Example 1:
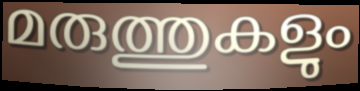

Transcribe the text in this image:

മരുത്തുകളും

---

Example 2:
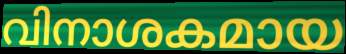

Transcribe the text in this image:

വിനാശകമായ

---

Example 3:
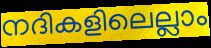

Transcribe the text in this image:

നദികളിലെല്ലാം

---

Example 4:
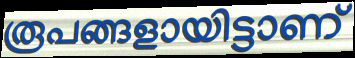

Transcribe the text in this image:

രൂപങ്ങളായിട്ടാണ്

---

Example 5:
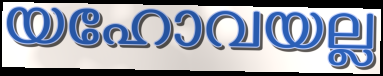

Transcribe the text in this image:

യഹോവയല്ല